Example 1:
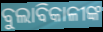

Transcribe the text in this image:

ବୁଲାବିକାଳୀଙ୍କ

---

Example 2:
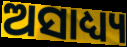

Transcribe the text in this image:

ଅସାଧ୍ୟ୍ୟ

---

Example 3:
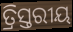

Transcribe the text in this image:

ତ୍ରିସ୍ତରୀୟ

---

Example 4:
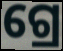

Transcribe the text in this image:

ଗ୍ରେ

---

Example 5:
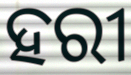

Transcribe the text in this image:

ହରୀ